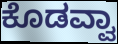
ಕೊಡವ್ವಾ